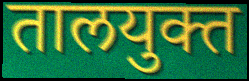
तालयुक्त